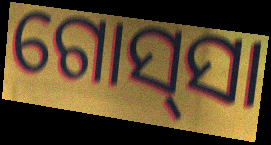
ଗୋସ୍‌ସା